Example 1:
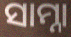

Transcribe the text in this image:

ସାମ୍ନା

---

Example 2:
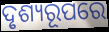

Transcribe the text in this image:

ଦୃଶ୍ୟରୂପରେ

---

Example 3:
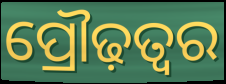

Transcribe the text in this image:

ପ୍ରୌଢ଼ତ୍ୱର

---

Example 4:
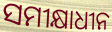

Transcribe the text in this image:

ସମୀକ୍ଷାଧୀନ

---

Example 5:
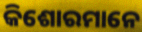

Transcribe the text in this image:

କିଶୋରମାନେ